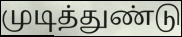
முடித்துண்டு